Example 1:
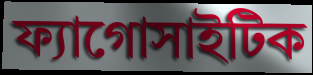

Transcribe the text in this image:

ফ্যাগোসাইটিক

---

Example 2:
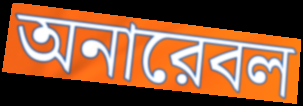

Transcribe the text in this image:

অনারেবল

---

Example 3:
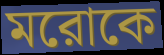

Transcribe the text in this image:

মরোকে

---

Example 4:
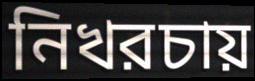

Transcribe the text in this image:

নিখরচায়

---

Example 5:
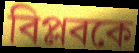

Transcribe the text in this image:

বিপ্লবকে